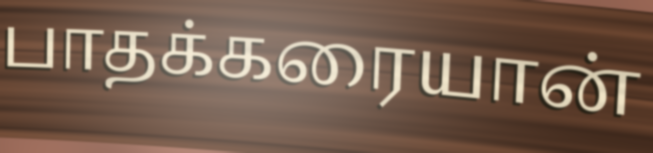
பாதக்கரையான்